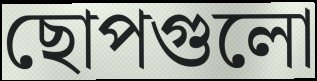
ছোপগুলো